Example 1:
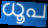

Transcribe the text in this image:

ധൂപ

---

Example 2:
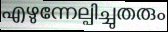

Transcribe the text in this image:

എഴുന്നേല്പിച്ചുതരും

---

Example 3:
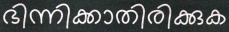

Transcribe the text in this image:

ഭിന്നിക്കാതിരിക്കുക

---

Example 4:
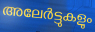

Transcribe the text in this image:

അലേർട്ടുകളും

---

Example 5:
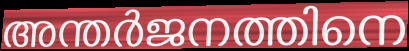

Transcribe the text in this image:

അന്തർജനത്തിനെ